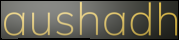
aushadh